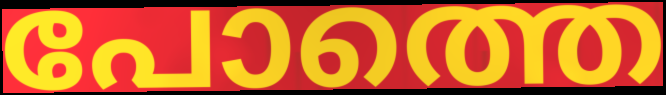
പോത്തെ